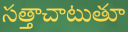
సత్తాచాటుతూ